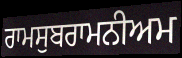
ਰਾਮਸੁਬਰਾਮਨੀਅਮ